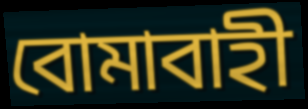
বোমাবাহী